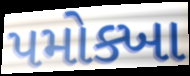
પમોક્ખા